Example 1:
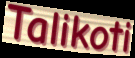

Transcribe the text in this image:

Talikoti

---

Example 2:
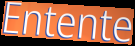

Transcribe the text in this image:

Entente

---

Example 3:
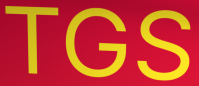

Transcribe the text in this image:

TGS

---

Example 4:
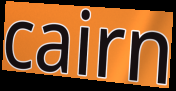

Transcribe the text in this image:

cairn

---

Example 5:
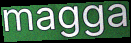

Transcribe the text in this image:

magga